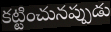
కట్టించునప్పుడు